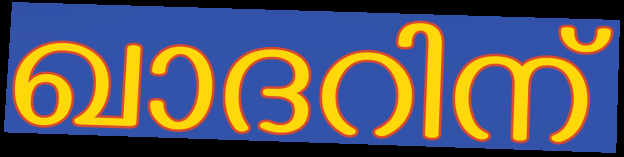
ഖാദറിന്